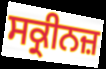
ਸਕ੍ਰੀਨਜ਼